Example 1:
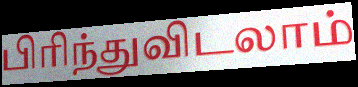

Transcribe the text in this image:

பிரிந்துவிடலாம்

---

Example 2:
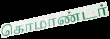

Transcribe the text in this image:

கொமாண்டர்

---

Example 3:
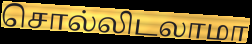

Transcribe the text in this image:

சொல்லிடலாமா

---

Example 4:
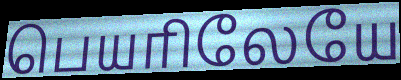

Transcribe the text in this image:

பெயரிலேயே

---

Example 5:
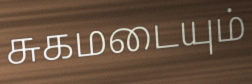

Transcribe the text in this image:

சுகமடையும்